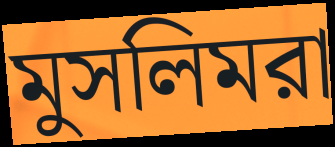
মুসলিমরা